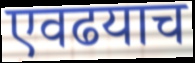
एवढयाच